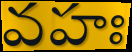
వహః